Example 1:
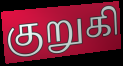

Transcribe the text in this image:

குறுகி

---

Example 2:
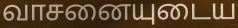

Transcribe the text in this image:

வாசனையுடைய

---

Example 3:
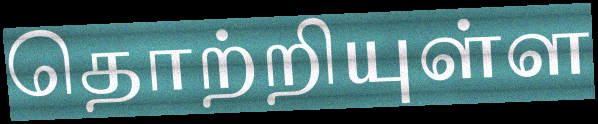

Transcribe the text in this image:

தொற்றியுள்ள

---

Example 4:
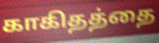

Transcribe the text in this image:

காகிதத்தை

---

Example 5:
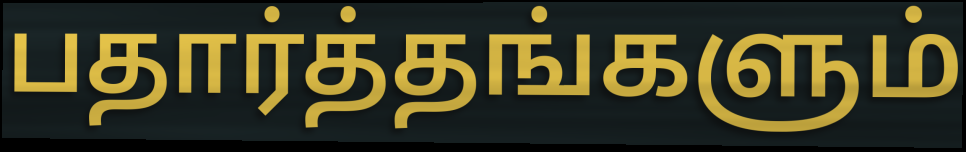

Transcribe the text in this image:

பதார்த்தங்களும்